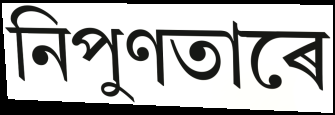
নিপুণতাৰে